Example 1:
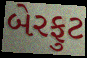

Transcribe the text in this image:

બેરફુટ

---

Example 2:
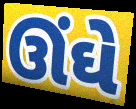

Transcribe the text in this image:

ઊંઘે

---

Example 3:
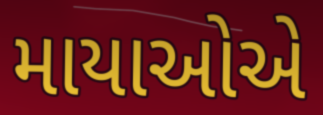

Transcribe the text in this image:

માયાઓએ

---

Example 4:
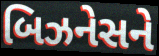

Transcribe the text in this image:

બિઝનેસને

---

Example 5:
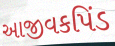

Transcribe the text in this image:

આજીવકપિંડ